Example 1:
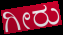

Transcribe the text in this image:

ಗೀರು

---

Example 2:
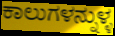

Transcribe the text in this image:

ಕಾಲುಗಳನ್ನುಳ್ಳ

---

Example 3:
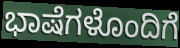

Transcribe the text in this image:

ಭಾಷೆಗಳೊಂದಿಗೆ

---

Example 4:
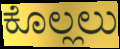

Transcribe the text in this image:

ಕೊಲ್ಲಲು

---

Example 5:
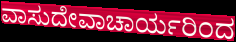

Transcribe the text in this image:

ವಾಸುದೇವಾಚಾರ್ಯರಿಂದ